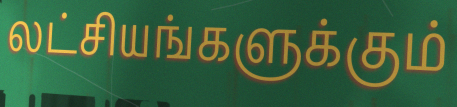
லட்சியங்களுக்கும்